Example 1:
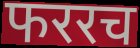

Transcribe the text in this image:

फररच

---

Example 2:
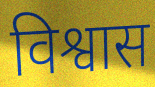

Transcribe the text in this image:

विश्वास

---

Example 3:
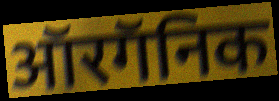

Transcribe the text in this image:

ऑरगॅनिक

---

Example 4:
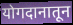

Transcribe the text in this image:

योगदानातून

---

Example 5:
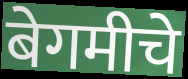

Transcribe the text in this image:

बेगमीचे